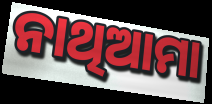
ନାଥିଆମା